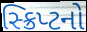
સ્ક્રિપ્ટનો